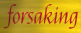
forsaking